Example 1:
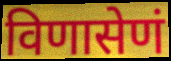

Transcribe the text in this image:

विणासेणं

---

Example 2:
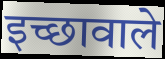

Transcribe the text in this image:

इच्छावाले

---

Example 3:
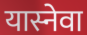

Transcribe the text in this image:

यास्नेवा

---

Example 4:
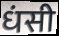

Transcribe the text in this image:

धंसी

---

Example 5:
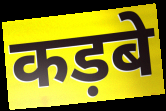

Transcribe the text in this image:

कड़बे